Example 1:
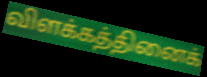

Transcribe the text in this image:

விளக்கத்தினைக்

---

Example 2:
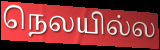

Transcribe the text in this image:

நெலயில்ல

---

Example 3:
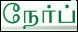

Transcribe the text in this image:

நேர்ப்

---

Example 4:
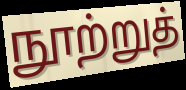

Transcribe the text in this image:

நூற்றுத்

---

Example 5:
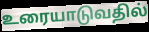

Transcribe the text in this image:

உரையாடுவதில்